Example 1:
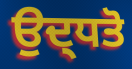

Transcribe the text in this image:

ਉਦ੍ਧਤੋ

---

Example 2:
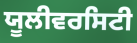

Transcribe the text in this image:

ਯੂਲੀਵਰਸਿਟੀ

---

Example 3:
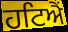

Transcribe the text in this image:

ਹਟਿਐਂ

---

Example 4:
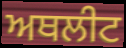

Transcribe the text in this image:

ਅਥਲੀਟ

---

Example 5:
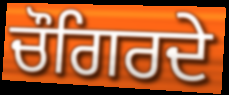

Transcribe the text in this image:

ਚੌਗਿਰਦੇ